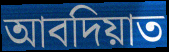
আবদিয়াত